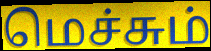
மெச்சும்